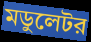
মডুলেটর